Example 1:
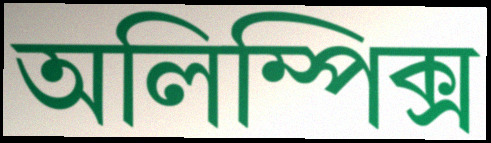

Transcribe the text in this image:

অলিম্পিক্স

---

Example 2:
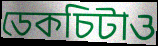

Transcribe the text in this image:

ডেকচিটাও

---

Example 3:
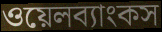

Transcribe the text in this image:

ওয়েলব্যাংকস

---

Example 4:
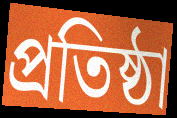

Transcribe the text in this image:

প্রতিষ্ঠা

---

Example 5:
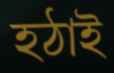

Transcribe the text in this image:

হঠাই